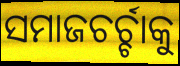
ସମାଜଚର୍ଚ୍ଚାକୁ